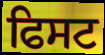
ਫਿਸਟ